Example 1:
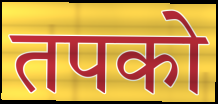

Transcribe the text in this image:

तपको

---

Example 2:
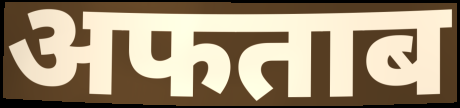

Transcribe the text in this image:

अफताब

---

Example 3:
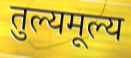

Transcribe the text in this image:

तुल्यमूल्य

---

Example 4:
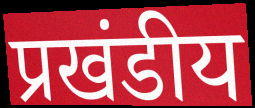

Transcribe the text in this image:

प्रखंडीय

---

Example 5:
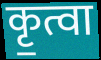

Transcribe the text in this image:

कृ॒त्वा